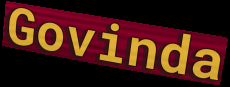
Govinda